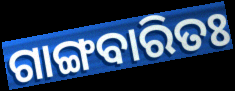
ଗାଙ୍ଗବାରିତଃ